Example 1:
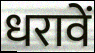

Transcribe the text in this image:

धरावें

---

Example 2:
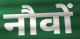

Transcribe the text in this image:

नौवों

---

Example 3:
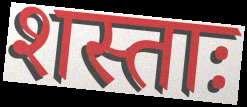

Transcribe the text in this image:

शस्ताः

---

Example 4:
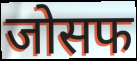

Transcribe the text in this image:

जोसफ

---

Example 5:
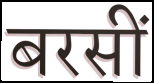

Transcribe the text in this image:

बरसीं